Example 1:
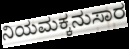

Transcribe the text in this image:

ನಿಯಮಕ್ಕನುಸಾರ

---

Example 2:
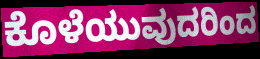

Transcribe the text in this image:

ಕೊಳೆಯುವುದರಿಂದ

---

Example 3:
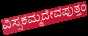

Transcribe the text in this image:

ವಿಸ್ಸಕಮ್ಮದೇವಪುತ್ತಂ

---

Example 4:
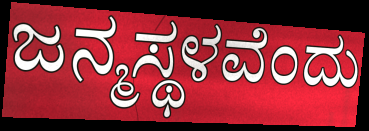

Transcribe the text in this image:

ಜನ್ಮಸ್ಥಳವೆಂದು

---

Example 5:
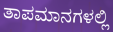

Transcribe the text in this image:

ತಾಪಮಾನಗಳಲ್ಲಿ